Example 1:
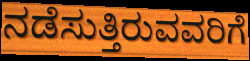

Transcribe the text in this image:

ನಡೆಸುತ್ತಿರುವವರಿಗೆ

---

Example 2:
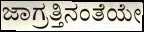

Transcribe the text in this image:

ಜಾಗ್ರತ್ತಿನಂತೆಯೇ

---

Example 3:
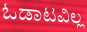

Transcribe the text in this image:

ಓಡಾಟವಿಲ್ಲ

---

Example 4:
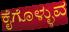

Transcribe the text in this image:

ಕೈಗೊಳ್ಳುವ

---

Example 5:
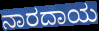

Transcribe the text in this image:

ನಾರದಾಯ